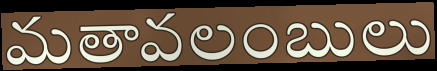
మతావలంబులు